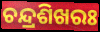
ଚନ୍ଦ୍ରଶିଖରଃ